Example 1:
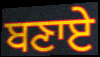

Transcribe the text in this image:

ਬਣਾਏ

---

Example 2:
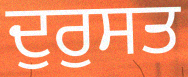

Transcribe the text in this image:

ਦੁਰੁਸਤ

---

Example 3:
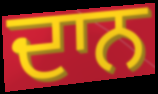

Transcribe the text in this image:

ਦਾਨ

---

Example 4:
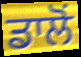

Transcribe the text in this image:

ਡਾਲੋਂ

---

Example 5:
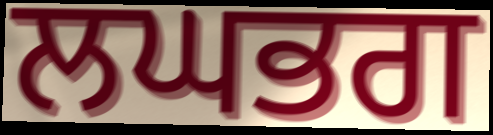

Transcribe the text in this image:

ਲਘਭਗ